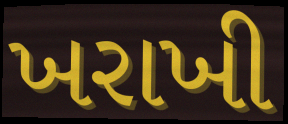
ખરાખી